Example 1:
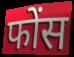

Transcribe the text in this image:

फोंस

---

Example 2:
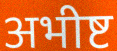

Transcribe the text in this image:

अभीष्ट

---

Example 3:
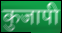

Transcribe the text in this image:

कुजापी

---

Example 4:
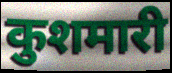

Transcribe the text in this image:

कुशमारी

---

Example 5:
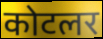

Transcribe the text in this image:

कोटलर